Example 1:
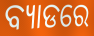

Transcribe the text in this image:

ବ୍ୟାଡରେ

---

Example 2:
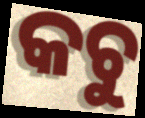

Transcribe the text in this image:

କଚୁ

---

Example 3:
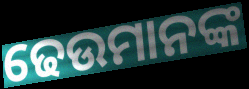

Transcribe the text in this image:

ଢେଉମାନଙ୍କ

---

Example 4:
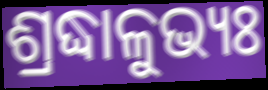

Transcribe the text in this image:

ଶ୍ରଦ୍ଧାଳୁଭ୍ୟଃ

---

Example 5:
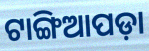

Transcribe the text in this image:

ଟାଙ୍ଗିଆପଡ଼ା